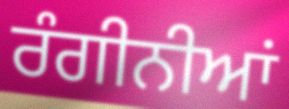
ਰੰਗੀਨੀਆਂ